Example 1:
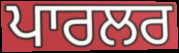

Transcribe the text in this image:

ਪਾਰਲਰ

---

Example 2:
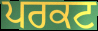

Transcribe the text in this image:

ਪਰਕਟ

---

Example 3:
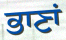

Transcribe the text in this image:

ਭਾਣਾਂ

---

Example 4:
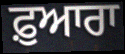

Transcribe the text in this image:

ਫ਼ੁਆਰਾ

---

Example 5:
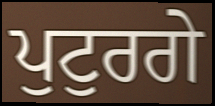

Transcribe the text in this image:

ਪੁਟੁਰਗੇ